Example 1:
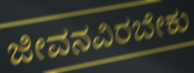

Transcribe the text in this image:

ಜೀವನವಿರಬೇಕು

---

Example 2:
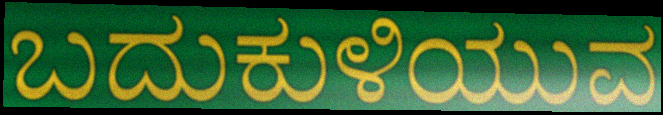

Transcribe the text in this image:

ಬದುಕುಳಿಯುವ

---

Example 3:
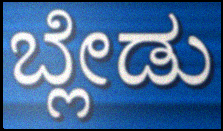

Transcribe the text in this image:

ಬ್ಲೇಡು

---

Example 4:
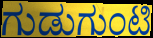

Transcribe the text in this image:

ಗುಡುಗುಂಟಿ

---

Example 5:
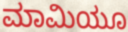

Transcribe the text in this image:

ಮಾಮಿಯೂ